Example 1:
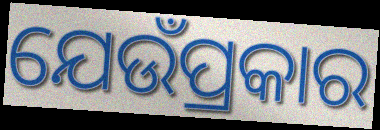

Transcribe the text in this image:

ଯେଉଁପ୍ରକାର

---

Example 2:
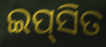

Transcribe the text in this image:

ଇପ୍‍ସିତ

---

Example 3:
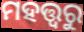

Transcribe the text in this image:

ମହତ୍ତ୍ୱରୁ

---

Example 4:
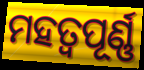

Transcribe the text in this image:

ମହତ୍ଵପୂର୍ଣ୍ଣ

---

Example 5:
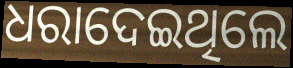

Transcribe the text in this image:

ଧରାଦେଇଥିଲେ